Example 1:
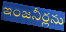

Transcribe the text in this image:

ఇంజనీర్లను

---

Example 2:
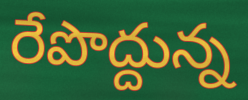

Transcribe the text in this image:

రేపొద్దున్న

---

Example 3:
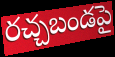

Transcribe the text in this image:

రచ్చబండపై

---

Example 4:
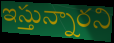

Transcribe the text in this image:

ఇస్తున్నారని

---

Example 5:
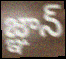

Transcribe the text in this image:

జ్ఞాన్